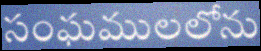
సంఘములలోను